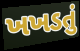
ખખડતું